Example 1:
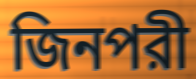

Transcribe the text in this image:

জিনপরী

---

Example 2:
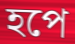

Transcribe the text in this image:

হপে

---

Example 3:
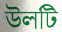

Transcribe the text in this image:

উলটি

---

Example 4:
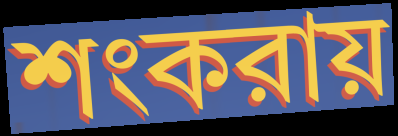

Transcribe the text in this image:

শংকরায়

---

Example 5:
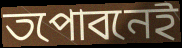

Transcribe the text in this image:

তপোবনেই